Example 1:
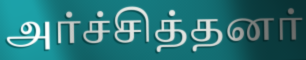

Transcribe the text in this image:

அர்ச்சித்தனர்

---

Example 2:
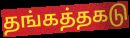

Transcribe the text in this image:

தங்கத்தகடு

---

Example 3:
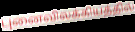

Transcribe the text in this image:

புனைவிலக்கியத்தில்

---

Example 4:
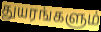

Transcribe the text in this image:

துயரங்களும்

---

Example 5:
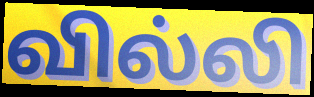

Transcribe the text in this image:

வில்லி